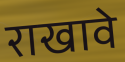
राखावे